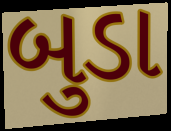
બુડા